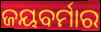
ଜୟବର୍ମାର